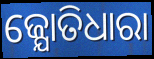
ଜ୍ଯୋତିଧାରା